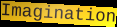
Imagination